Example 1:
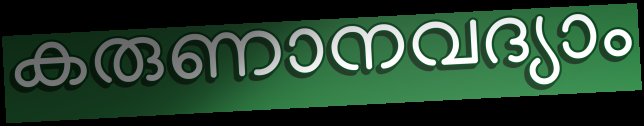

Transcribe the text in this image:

കരുണാനവദ്യാം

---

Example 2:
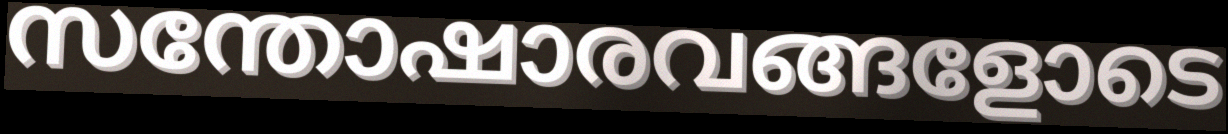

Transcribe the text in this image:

സന്തോഷാരവങ്ങളോടെ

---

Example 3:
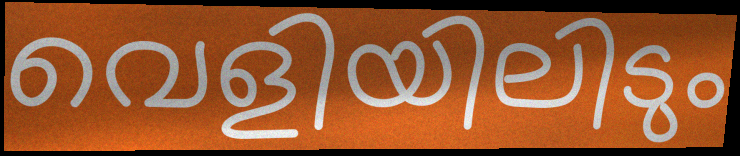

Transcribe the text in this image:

വെളിയിലിടും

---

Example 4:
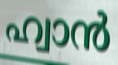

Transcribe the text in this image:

ഹ്വാൻ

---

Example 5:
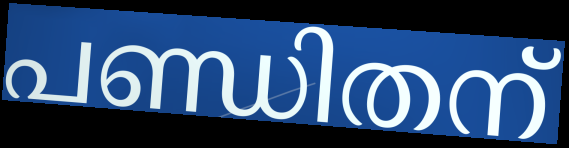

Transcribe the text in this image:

പണ്ഡിതന്